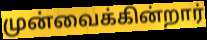
முன்வைக்கின்றார்